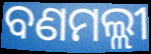
ବଣମଲ୍ଲୀ